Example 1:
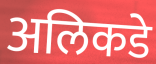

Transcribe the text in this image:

अलिकडे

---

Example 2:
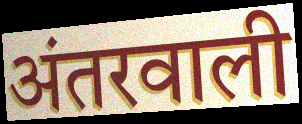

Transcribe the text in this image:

अंतरवाली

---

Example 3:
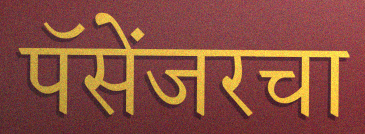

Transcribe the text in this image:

पॅसेंजरचा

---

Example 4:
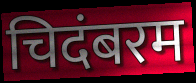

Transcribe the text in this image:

चिदंबरम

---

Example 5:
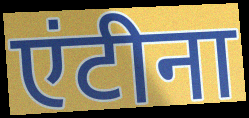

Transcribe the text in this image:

एंटीना